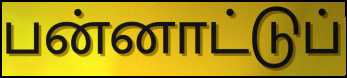
பன்னாட்டுப்